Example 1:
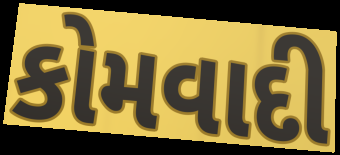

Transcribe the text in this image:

કોમવાદી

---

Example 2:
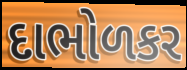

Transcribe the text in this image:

દાભોળકર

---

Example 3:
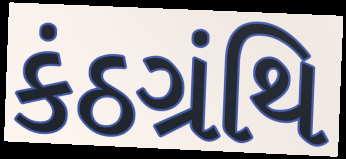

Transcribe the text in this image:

કંઠગ્રંથિ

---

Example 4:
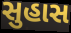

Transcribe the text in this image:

સુહાસ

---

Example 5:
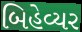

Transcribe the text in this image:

બિહેવ્યર